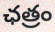
ఛత్రం